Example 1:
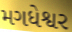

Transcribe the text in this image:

મગધેશ્વર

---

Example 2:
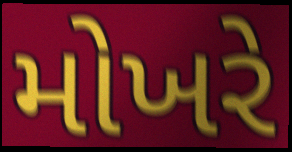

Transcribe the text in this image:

મોખરે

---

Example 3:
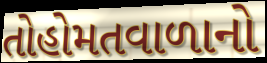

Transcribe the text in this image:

તોહોમતવાળાનો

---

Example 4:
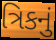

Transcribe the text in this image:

ત્રિકનું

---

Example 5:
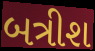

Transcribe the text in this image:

બત્રીશ